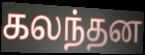
கலந்தன